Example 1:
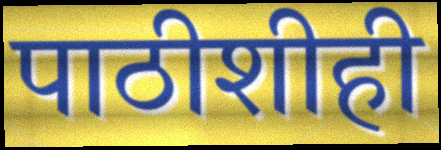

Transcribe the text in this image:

पाठीशीही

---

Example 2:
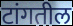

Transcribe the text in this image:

टांगतील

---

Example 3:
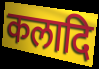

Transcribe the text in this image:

कलादि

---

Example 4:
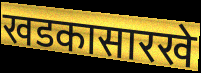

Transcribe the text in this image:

खडकासारखे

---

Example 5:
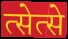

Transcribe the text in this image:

त्सेत्से